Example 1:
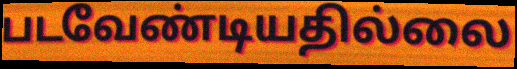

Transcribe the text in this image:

படவேண்டியதில்லை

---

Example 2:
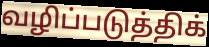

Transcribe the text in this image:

வழிப்படுத்திக்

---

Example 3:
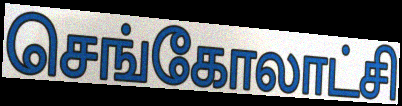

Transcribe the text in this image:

செங்கோலாட்சி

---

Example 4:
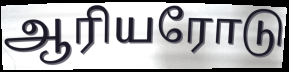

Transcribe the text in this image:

ஆரியரோடு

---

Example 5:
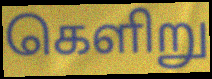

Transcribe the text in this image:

கெளிறு